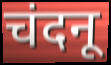
चंदनू